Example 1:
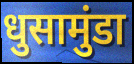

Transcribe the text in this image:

धुसामुंडा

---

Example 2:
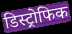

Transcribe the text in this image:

डिस्ट्रोफिक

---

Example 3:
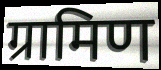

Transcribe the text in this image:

ग्रामिण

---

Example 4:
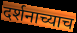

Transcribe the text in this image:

दर्शनाच्याच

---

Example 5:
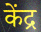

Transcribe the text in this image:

केंद्र